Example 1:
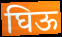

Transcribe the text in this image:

घिऊ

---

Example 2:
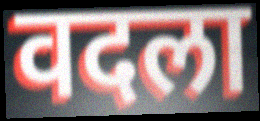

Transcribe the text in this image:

वदला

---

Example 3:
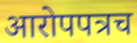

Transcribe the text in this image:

आरोपपत्रच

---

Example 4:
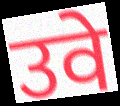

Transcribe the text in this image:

उवे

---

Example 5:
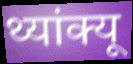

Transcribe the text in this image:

थ्यांक्यू